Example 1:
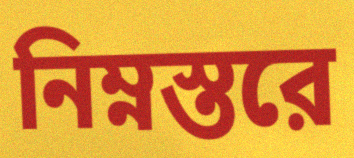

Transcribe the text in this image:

নিম্নস্তরে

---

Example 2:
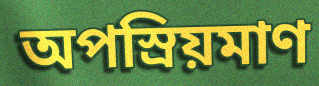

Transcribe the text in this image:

অপস্রিয়মাণ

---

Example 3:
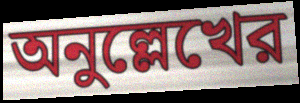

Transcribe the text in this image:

অনুল্লেখের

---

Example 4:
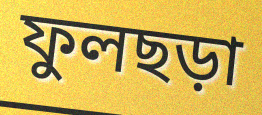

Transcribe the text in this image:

ফুলছড়া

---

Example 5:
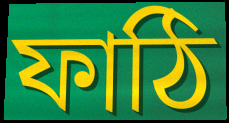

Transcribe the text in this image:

ফাঠি